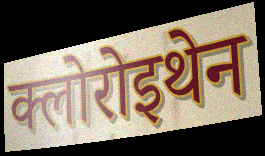
क्लोरोइथेन